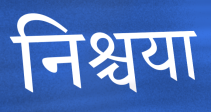
निश्चया